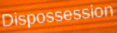
Dispossession